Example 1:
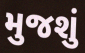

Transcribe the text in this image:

મુજશું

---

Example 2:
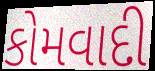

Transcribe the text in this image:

કોમવાદી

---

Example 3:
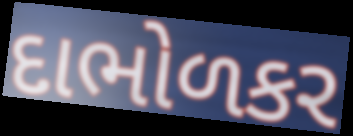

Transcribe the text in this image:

દાભોળકર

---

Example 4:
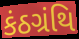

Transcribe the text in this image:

કંઠગ્રંથિ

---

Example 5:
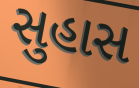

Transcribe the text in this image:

સુહાસ